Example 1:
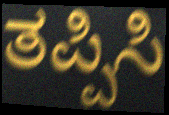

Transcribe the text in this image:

ತಪ್ಪಿಸಿ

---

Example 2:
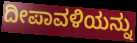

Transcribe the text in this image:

ದೀಪಾವಳಿಯನ್ನು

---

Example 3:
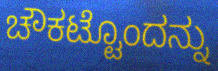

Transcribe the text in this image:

ಚೌಕಟ್ಟೊಂದನ್ನು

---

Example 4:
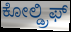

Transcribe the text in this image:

ಕೋಲ್ಡ್ರಿಫ್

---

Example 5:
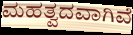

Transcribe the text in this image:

ಮಹತ್ವದವಾಗಿವೆ